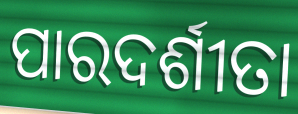
ପାରଦର୍ଶୀତା